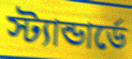
স্ট্যান্ডার্ডে